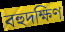
বহুদক্ষিণ